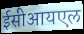
ईसीआयएल